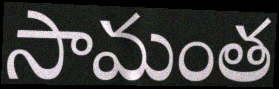
సామంత